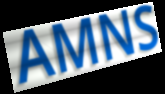
AMNS